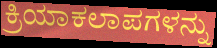
ಕ್ರಿಯಾಕಲಾಪಗಳನ್ನು